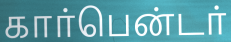
கார்பென்டர்